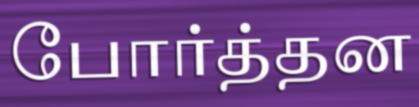
போர்த்தன